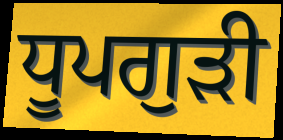
ਧੂਪਗੁੜੀ